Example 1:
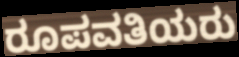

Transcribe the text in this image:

ರೂಪವತಿಯರು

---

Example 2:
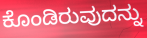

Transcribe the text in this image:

ಕೊಂಡಿರುವುದನ್ನು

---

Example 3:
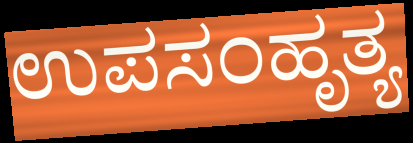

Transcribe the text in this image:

ಉಪಸಂಹೃತ್ಯ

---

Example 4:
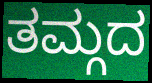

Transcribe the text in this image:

ತಮ್ಗದ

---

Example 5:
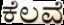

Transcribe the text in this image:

ಕೆಲವೆ